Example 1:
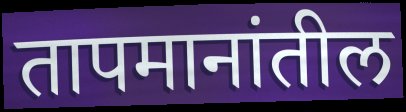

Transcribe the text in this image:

तापमानांतील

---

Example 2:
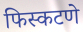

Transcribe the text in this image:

फिस्कटणे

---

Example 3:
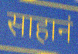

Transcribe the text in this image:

साहानं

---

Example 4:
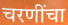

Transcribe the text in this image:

चरणींचा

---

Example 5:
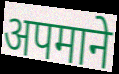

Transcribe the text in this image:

अपमाने